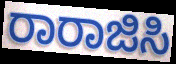
ರಾರಾಜಿಸಿ